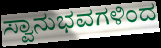
ಸ್ವಾನುಭವಗಳಿಂದ